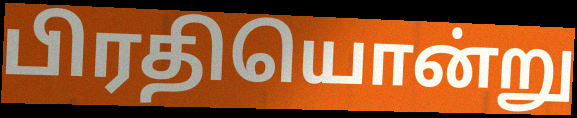
பிரதியொன்று